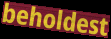
beholdest